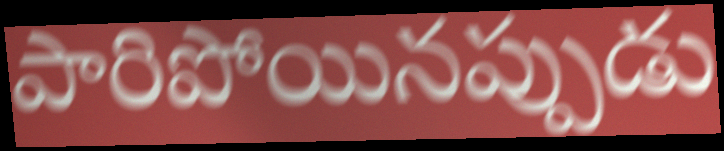
పారిపోయినప్పుడు